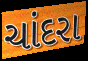
ચાંદરા